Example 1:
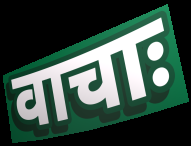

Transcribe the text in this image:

वाचाः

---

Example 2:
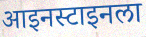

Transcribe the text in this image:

आइनस्टाइनला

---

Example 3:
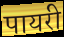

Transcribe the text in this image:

पायरी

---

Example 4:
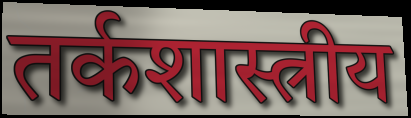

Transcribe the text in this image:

तर्कशास्त्रीय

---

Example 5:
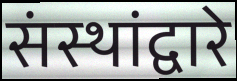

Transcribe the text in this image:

संस्थांद्वारे